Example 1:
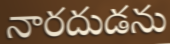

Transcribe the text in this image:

నారదుడను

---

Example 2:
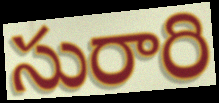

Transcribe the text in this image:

సురారి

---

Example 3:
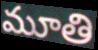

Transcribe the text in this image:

మూతి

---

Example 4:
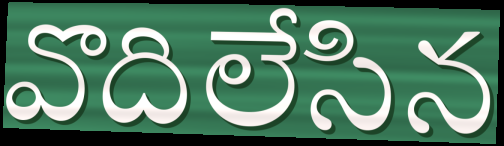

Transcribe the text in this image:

వొదిలేసిన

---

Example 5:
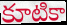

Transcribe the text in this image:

కూటికా